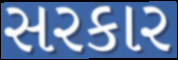
સરકાર